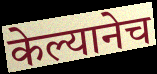
केल्यानेच